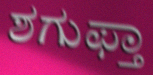
ಶಗುಫ್ತಾ